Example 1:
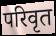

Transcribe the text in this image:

परिवृत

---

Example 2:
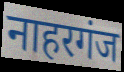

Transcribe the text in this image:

नाहरगंज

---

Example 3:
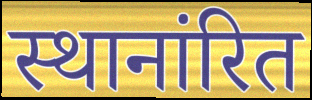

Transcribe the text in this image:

स्थानांरित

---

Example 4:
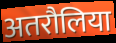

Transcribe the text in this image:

अतरौलिया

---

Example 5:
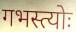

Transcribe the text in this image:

गभस्त्योः